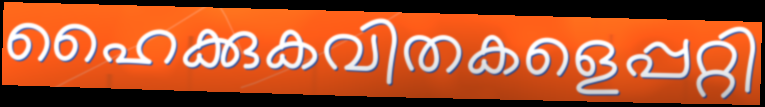
ഹൈക്കുകവിതകളെപ്പറ്റി